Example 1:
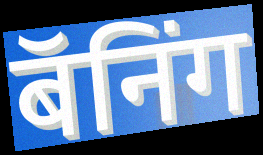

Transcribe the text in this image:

बॅनिंग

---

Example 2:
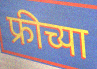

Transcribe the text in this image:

फ्रीच्या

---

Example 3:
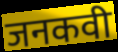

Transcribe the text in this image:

जनकवी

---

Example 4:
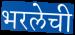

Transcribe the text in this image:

भरलेची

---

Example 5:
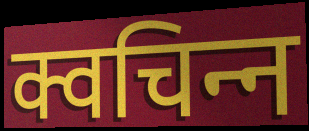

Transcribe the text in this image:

क्वचिन्न